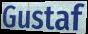
Gustaf